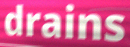
drains